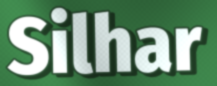
Silhar